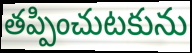
తప్పించుటకును